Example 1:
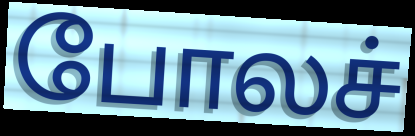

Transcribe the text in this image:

போலச்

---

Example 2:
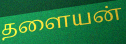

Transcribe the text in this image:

தளையன்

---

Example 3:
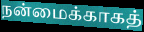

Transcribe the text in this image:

நன்மைக்காகத்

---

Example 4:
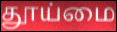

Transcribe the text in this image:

தூய்மை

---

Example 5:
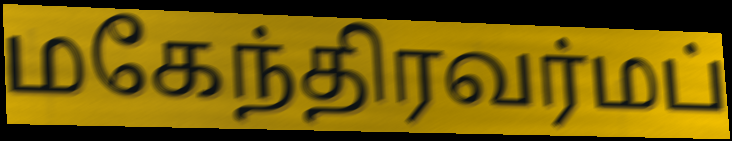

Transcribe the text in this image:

மகேந்திரவர்மப்